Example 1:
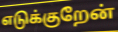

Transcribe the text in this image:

எடுக்குறேன்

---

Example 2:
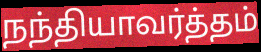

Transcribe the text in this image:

நந்தியாவர்த்தம்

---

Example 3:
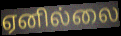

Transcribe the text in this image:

ஏனில்லை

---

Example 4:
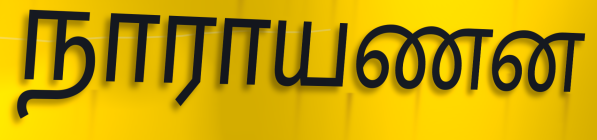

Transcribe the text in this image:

நாராயணன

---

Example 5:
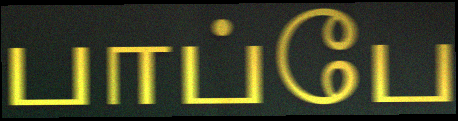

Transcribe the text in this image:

பாப்பே